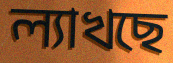
ল্যাখছে